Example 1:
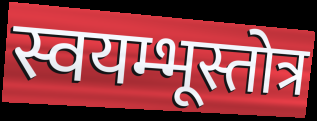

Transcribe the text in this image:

स्वयम्भूस्तोत्र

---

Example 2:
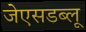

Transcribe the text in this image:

जेएसडब्‍लू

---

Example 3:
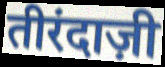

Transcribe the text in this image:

तीरंदाज़ी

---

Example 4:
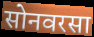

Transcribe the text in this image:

सोनवरसा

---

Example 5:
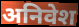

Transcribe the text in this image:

अनिवेश